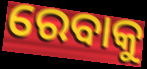
ରେବାକୁ